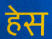
हेस